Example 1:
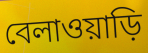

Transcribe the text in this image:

বেলাওয়াড়ি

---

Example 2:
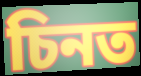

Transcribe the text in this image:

চিনত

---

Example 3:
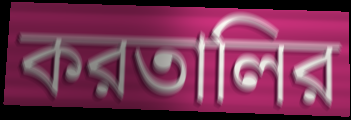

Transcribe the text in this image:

করতালির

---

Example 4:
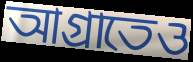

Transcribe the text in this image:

আগ্রাতেও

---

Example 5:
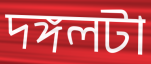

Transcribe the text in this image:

দঙ্গলটা